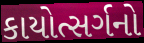
કાયોત્સર્ગનો